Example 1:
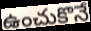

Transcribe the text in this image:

ఉంచుకొనే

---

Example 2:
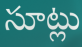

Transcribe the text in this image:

సూట్లు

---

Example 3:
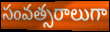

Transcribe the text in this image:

సంవత్సరాలుగా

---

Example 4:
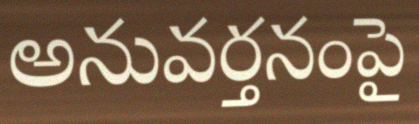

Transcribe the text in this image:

అనువర్తనంపై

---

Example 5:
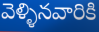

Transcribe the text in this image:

వెళ్ళినవారికి